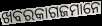
ଖବରକାଗଜମାନେ